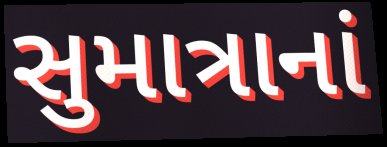
સુમાત્રાનાં